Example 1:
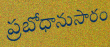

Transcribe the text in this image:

ప్రబోధానుసారం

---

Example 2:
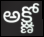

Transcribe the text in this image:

అక్ష్ణో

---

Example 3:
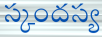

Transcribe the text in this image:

స్కందస్య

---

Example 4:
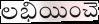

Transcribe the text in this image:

లభియించె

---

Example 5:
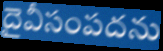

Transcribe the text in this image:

దైవీసంపదను